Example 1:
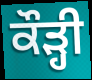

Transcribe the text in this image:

ਕੌੜ੍ਹੀ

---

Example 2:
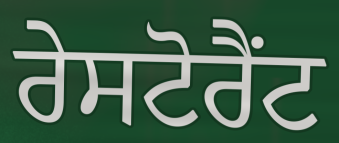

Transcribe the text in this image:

ਰੇਸਟੋਰੈਂਟ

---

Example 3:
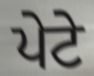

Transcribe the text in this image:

ਪੇਟੇ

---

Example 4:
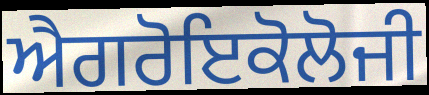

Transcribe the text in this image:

ਐਗਰੋਇਕੋਲੋਜੀ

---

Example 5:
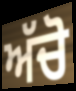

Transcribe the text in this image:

ਅੱਚੋ